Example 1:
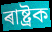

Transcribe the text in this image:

ৰাষ্ট্ৰক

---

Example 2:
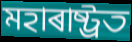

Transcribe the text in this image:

মহাৰাষ্ট্ৰত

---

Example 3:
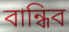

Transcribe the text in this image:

বান্ধিব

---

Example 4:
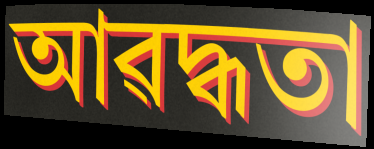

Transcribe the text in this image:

আৱদ্ধতা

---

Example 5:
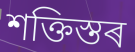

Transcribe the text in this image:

শক্তিস্তৰ